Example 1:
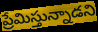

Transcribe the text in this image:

ప్రేమిస్తున్నాడని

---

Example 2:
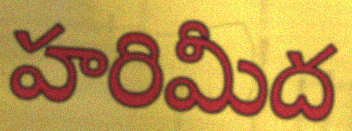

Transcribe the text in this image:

హరిమీద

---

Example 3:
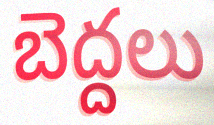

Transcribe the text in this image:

బెద్దలు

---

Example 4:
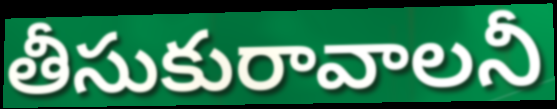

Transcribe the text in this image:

తీసుకురావాలనీ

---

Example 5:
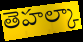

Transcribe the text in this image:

తెహల్కా